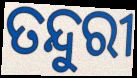
ତନ୍ଦୁରୀ